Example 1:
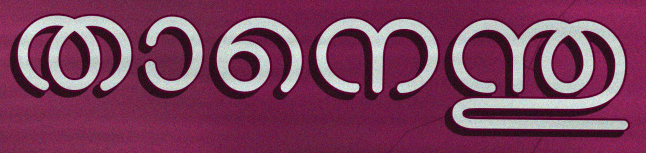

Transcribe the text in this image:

താനെന്തു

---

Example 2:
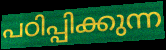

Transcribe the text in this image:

പഠിപ്പിക്കുന്ന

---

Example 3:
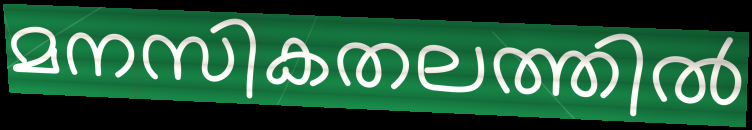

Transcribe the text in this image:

മനസികതലത്തിൽ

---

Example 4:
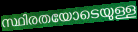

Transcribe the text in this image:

സ്ഥിരതയോടെയുള്ള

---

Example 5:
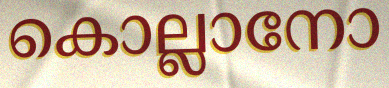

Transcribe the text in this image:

കൊല്ലാനോ